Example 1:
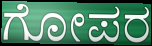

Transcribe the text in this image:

ಗೋಪರ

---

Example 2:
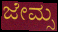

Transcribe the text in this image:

ಜೇಮ್ಸ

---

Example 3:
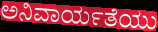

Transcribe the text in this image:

ಅನಿವಾರ್ಯತೆಯು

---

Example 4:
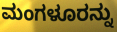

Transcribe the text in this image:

ಮಂಗಳೂರನ್ನು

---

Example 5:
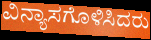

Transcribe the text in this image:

ವಿನ್ಯಾಸಗೊಳಿಸಿದರು